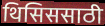
थिसिससाठी